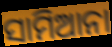
ସାମିଆନା